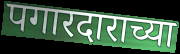
पगारदाराच्या